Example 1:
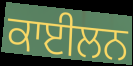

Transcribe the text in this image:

ਕਾਈਲਨ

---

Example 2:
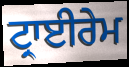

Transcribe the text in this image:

ਟ੍ਰਾਈਰੇਮ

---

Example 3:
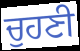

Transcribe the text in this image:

ਚੁਹਣੀ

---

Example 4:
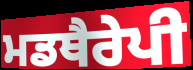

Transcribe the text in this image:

ਮਡਥੈਰੇਪੀ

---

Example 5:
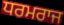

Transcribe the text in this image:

ਧਰਮਰਾਜ